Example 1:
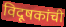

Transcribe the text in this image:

विदूषकांची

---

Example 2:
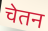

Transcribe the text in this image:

चेतन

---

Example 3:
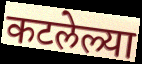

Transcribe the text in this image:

कटलेल्या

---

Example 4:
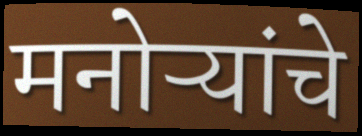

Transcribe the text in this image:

मनोऱ्यांचे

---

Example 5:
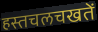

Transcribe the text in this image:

हस्तचलचखतें